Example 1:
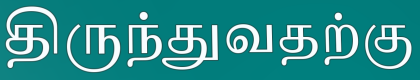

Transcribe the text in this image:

திருந்துவதற்கு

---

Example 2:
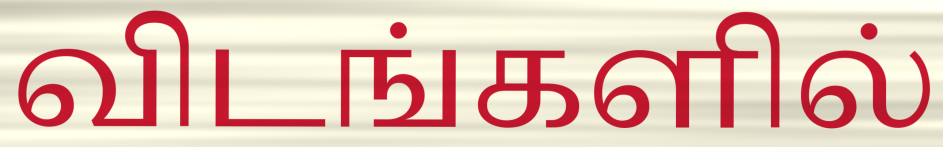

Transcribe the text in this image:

விடங்களில்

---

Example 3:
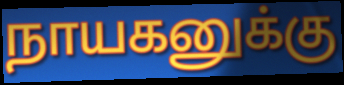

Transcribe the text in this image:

நாயகனுக்கு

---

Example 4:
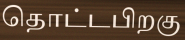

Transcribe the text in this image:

தொட்டபிறகு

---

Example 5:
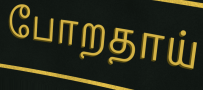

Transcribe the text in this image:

போறதாய்